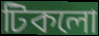
টিকলো